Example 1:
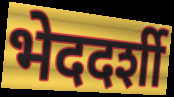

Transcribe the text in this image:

भेददर्शी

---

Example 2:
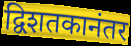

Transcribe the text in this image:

द्विशतकानंतर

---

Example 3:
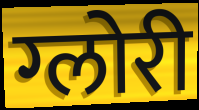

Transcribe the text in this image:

ग्लोरी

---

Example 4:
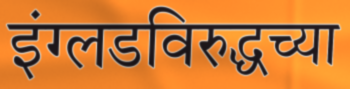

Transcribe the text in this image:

इंग्लडविरुद्धच्या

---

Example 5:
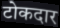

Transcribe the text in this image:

टोकदार